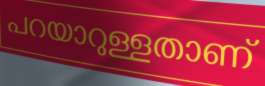
പറയാറുള്ളതാണ്